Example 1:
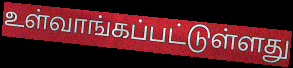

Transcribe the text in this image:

உள்வாங்கப்பட்டுள்ளது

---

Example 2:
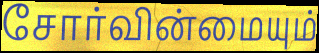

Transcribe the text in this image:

சோர்வின்மையும்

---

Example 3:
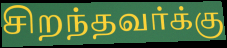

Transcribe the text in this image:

சிறந்தவர்க்கு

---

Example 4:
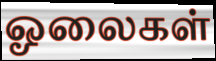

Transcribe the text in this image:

ஓலைகள்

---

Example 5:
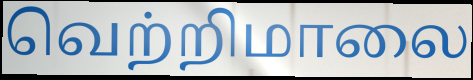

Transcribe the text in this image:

வெற்றிமாலை